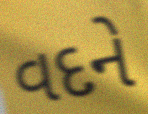
વદને